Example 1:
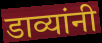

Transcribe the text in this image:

डाव्यांनी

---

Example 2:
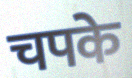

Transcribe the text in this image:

चपके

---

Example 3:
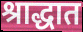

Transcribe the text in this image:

श्राद्धात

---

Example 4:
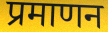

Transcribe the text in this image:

प्रमाणन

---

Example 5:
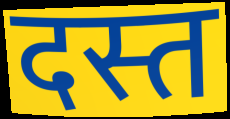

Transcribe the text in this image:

दस्त